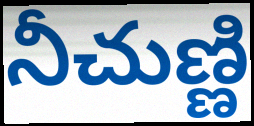
నీచుణ్ణి